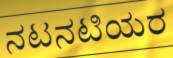
ನಟನಟಿಯರ